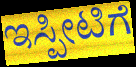
ಇಸ್ಪೀಟಿಗೆ